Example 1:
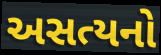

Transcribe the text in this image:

અસત્યનો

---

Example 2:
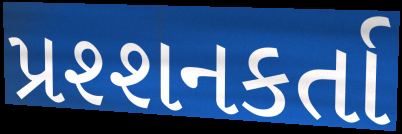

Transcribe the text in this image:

પ્રશ્શનકર્તા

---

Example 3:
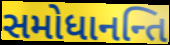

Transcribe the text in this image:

સમોધાનન્તિ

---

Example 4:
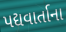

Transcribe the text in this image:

પદ્યવાર્તાના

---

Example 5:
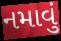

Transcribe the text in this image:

નમાવું